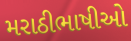
મરાઠીભાષીઓ